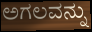
ಅಗಲವನ್ನು